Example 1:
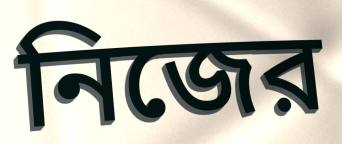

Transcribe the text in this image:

নিজের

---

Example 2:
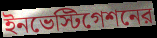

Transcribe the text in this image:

ইনভেস্টিগেশনের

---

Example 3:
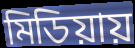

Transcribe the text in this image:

মিডিয়ায়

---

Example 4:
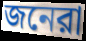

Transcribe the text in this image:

জনেরা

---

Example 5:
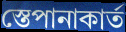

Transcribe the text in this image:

স্তেপানাকার্ত